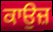
ਕਾਉਜ਼